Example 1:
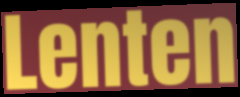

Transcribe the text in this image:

Lenten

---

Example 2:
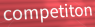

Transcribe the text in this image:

competiton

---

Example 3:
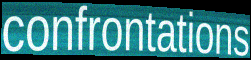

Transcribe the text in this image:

confrontations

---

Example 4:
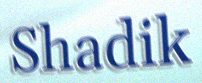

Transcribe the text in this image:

Shadik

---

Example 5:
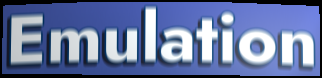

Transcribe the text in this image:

Emulation